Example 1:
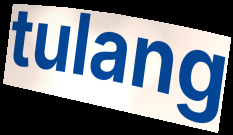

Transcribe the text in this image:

tulang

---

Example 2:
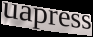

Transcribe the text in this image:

uapress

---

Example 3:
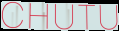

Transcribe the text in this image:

CHUTU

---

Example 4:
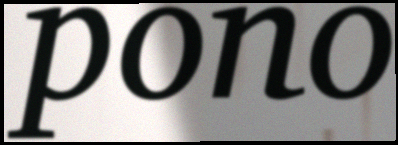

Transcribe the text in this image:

pono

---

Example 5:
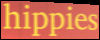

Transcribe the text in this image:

hippies